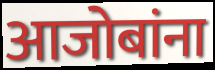
आजोबांना